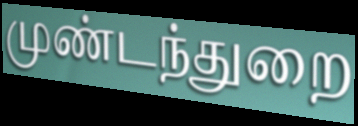
முண்டந்துறை